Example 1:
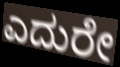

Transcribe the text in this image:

ಎದುರೇ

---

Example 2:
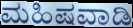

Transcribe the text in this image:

ಮಹಿಷವಾಡಿ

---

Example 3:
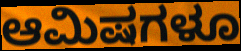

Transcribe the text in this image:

ಆಮಿಷಗಳೂ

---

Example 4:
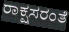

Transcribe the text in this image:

ರಾಕ್ಷಸರಂತೆ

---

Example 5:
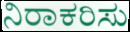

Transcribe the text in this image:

ನಿರಾಕರಿಸು